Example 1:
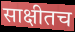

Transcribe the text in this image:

साक्षीतच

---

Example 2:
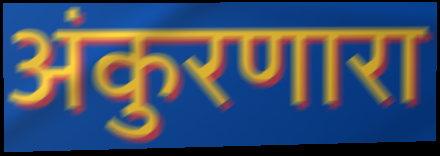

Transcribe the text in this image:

अंकुरणारा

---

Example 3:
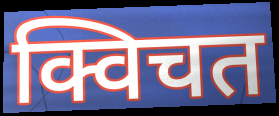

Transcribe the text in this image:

क्विचत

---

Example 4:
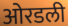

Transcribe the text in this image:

ओरडली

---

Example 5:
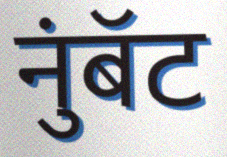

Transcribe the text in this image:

नुंबॅट